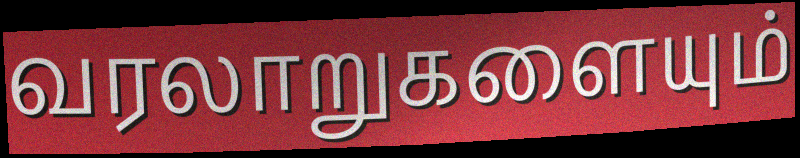
வரலாறுகளையும்